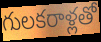
గులకరాళ్లతో